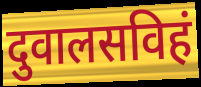
दुवालसविहं